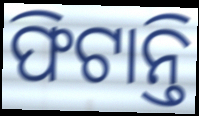
ଫିଟାନ୍ତି